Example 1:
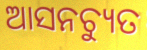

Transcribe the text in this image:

ଆସନଚ୍ୟୁତ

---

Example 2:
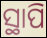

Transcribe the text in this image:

ସ୍ଥାପି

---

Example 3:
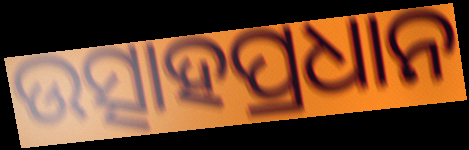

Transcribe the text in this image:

ଉତ୍ସାହପ୍ରଧାନ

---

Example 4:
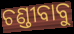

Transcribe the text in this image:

ଚଣ୍ଡୀବାବୁ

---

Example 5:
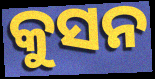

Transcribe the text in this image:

କୁସନ